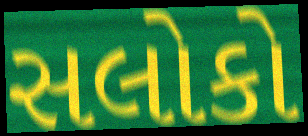
સલોકો